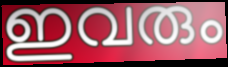
ഇവരും